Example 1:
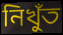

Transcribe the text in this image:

নিখুঁত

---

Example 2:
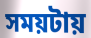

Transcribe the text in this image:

সময়টায়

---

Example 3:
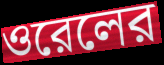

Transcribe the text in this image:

ওরেলের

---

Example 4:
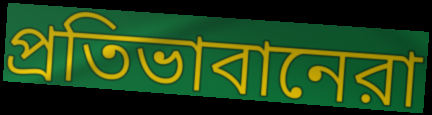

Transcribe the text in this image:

প্রতিভাবানেরা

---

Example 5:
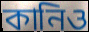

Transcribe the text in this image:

কানিও